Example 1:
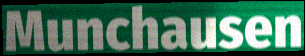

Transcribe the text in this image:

Munchausen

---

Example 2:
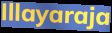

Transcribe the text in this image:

Illayaraja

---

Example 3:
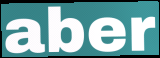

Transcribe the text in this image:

aber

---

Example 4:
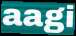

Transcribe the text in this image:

aagi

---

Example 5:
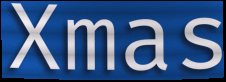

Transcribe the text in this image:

Xmas